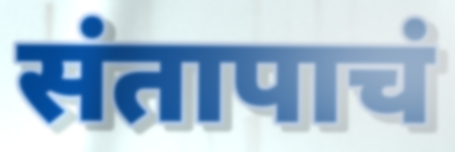
संतापाचं